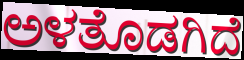
ಅಳತೊಡಗಿದೆ